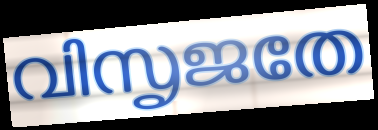
വിസൃജതേ